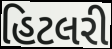
હિટલરી